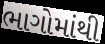
ભાગોમાંથી